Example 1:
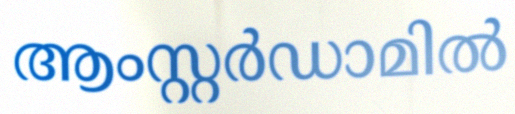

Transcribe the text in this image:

ആംസ്റ്റർഡാമിൽ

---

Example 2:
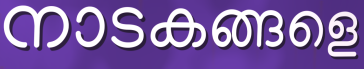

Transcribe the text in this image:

നാടകങ്ങളെ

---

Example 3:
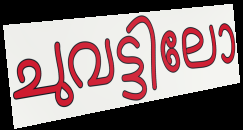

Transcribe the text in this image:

ചുവട്ടിലോ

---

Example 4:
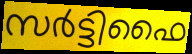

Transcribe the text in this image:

സർട്ടിഫൈ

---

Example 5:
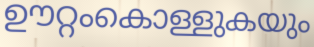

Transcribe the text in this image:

ഊറ്റംകൊള്ളുകയും